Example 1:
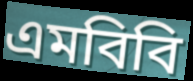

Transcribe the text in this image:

এমবিবি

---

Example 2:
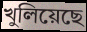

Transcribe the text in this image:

খুলিয়েছে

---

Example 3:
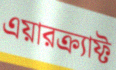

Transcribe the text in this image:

এয়ারক্র্যাফ্ট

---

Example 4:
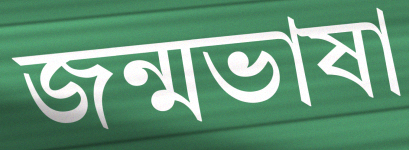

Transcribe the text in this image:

জন্মভাষা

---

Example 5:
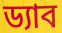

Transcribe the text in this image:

ড্যাব